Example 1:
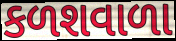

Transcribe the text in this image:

કળશવાળા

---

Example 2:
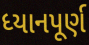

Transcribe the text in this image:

ધ્યાનપૂર્ણ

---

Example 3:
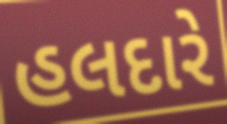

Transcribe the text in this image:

હલદારે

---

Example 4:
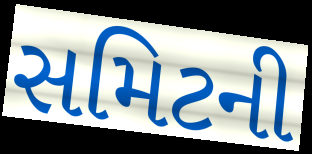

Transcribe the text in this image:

સમિટની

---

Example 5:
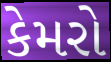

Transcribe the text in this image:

કેમરો